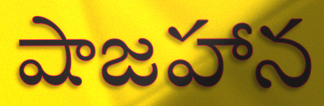
షాజహాన